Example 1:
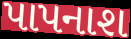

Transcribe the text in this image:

પાપનાશ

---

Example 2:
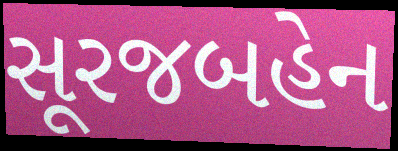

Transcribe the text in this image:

સૂરજબહેન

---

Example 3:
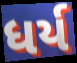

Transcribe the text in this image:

ધર્ય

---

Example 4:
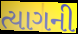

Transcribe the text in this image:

ત્યાગની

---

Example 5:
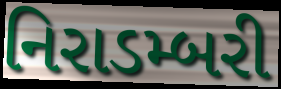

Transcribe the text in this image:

નિરાડમ્બરી